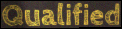
Qualified